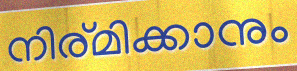
നിര്മിക്കാനും